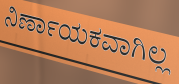
ನಿರ್ಣಾಯಕವಾಗಿಲ್ಲ